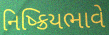
નિષ્ક્રિયભાવે